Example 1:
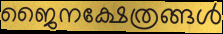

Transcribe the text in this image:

ജൈനക്ഷേത്രങ്ങൾ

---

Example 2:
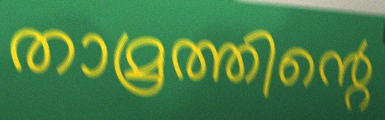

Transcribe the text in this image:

താമ്രത്തിന്റെ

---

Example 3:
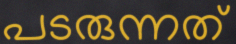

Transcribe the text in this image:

പടരുന്നത്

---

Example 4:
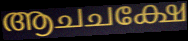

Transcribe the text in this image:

ആചചക്ഷേ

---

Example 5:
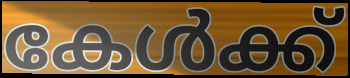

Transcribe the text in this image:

കേൾക്ക്